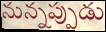
నున్నప్పుడు